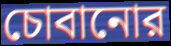
চোবানোর